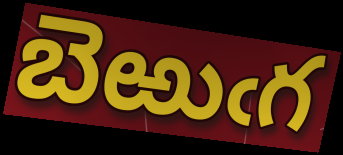
బెఱుఁగ